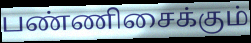
பண்ணிசைக்கும்